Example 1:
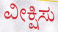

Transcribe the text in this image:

ವೀಕ್ಷಿಸು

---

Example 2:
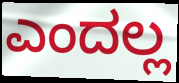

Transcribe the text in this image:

ಎಂದಲ್ಲ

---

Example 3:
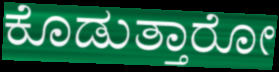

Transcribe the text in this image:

ಕೊಡುತ್ತಾರೋ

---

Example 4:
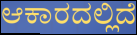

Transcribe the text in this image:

ಆಕಾರದಲ್ಲಿದೆ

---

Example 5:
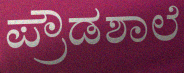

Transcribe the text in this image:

ಪ್ರೌಡಶಾಲೆ